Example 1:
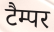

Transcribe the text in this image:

टैम्पर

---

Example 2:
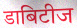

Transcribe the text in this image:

डाबिटीज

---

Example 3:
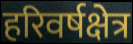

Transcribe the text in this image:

हरिवर्षक्षेत्र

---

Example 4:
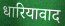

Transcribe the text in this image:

धारियावाद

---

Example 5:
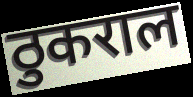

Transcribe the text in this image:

ठुकराल